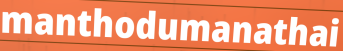
manthodumanathai